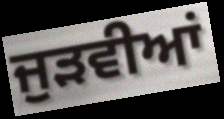
ਜੁੜਵੀਆਂ